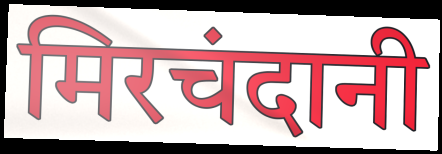
मिरचंदानी